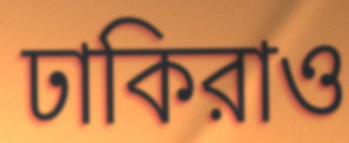
ঢাকিরাও